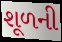
શૂળની